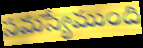
సమస్యేముంది